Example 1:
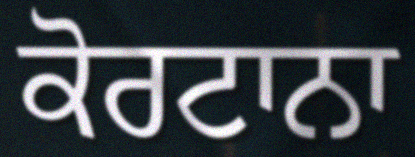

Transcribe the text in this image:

ਕੋਰਟਾਨਾ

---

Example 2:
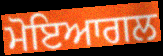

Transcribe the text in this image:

ਮੋਇਆਗਲ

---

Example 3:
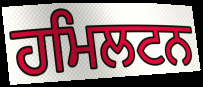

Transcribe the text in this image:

ਹਮਿਲਟਨ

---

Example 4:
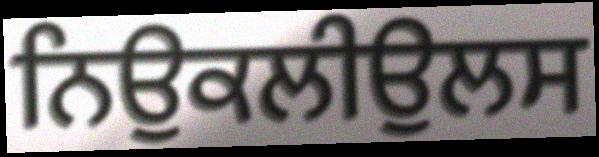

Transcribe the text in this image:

ਨਿਉਕਲੀਉਲਸ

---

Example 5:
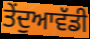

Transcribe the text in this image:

ਤੇਂਦੁਆਵੱਡੀ